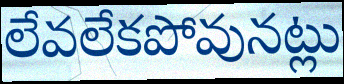
లేవలేకపోవునట్లు